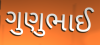
ગુણુભાઈ